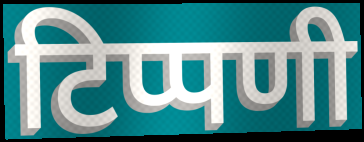
टिप्पणी